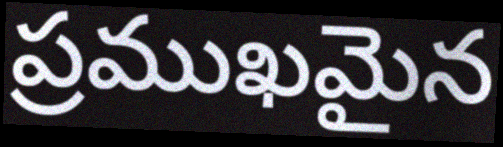
ప్రముఖమైన